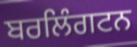
ਬਰਲਿੰਗਟਨ